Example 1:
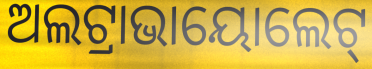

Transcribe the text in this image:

ଅଲଟ୍ରାଭାୟୋଲେଟ୍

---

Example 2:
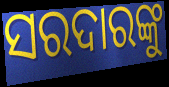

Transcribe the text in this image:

ସରଦାରଙ୍କୁ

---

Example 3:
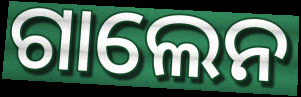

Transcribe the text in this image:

ଗାଲେନ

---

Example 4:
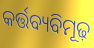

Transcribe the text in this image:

କର୍ତ୍ତବ୍ୟବିମୂଢ଼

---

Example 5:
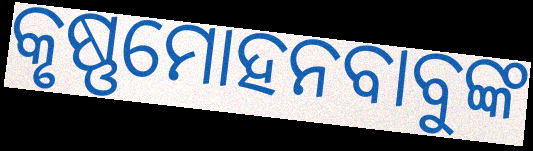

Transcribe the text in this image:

କୃଷ୍ଣମୋହନବାବୁଙ୍କ